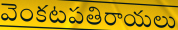
వెంకటపతిరాయలు